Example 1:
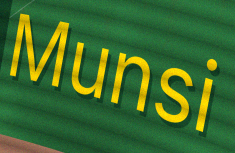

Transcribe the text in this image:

Munsi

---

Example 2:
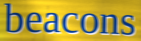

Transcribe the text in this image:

beacons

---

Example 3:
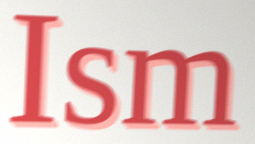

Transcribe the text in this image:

Ism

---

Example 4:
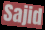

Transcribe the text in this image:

Sajid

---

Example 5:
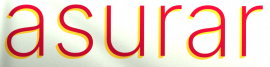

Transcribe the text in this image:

asurar